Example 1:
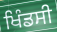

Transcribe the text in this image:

ਖਿੰਡਸੀ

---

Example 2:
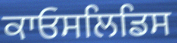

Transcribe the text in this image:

ਕਾਓਸਲਿਡਿਸ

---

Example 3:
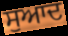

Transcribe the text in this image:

ਸੁਆਦ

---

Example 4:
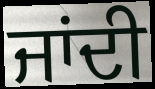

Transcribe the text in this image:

ਜਾਂਦੀ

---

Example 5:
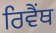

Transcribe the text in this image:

ਰਿਵੈਂਥ